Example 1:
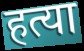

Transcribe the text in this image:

हत्‍या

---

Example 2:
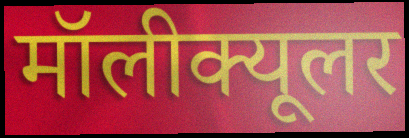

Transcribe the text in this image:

मॉलीक्यूलर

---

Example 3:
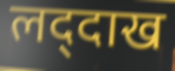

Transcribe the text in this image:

लद्‌दाख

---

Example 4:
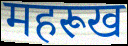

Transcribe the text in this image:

महरूख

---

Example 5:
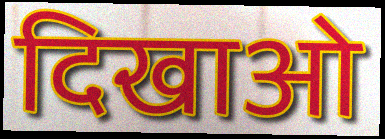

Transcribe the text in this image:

दिखाओ